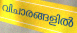
വിചാരങ്ങളിൽ